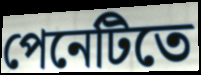
পেনেটিতে